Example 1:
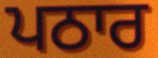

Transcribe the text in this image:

ਪਠਾਰ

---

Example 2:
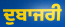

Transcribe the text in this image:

ਦੁਬਾਜਰੀ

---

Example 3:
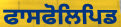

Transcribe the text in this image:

ਫਾਸਫੋਲਿਪਿਡ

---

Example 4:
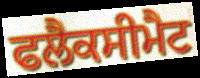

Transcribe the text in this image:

ਫਲੈਕਸੀਮੈਟ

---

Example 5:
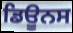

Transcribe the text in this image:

ਡਿਊਨਸ